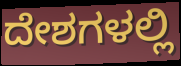
ದೇಶಗಳಲ್ಲಿ